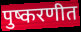
पुष्करणीत